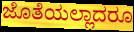
ಜೊತೆಯಲ್ಲಾದರೂ